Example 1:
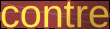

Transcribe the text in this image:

contre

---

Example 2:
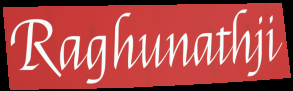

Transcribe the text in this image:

Raghunathji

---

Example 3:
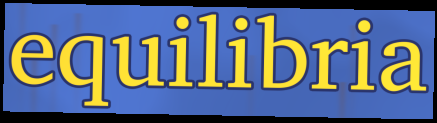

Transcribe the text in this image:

equilibria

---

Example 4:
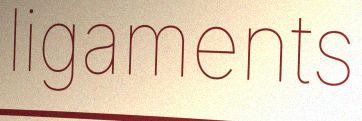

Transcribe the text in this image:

ligaments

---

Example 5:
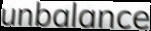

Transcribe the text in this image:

unbalance